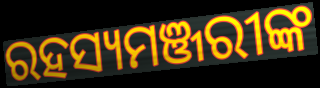
ରହସ୍ୟମଞ୍ଜରୀଙ୍କ